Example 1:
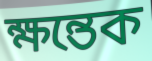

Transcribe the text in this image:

ক্ষন্তেক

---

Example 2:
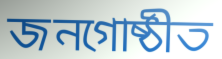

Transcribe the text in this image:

জনগোষ্ঠীত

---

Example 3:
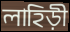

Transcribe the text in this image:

লাহিড়ী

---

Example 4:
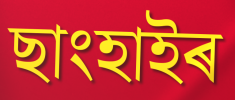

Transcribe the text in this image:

ছাংহাইৰ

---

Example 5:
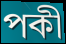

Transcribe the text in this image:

পকী